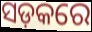
ସଡ଼କରେ